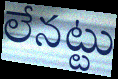
లేనట్టు